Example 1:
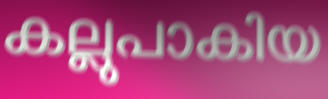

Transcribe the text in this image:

കല്ലുപാകിയ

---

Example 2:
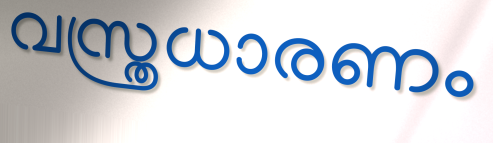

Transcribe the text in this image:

വസ്ത്രധാരണം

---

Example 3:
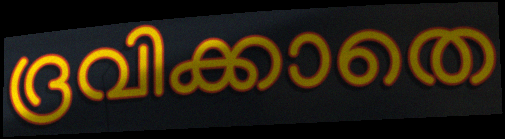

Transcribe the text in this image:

ദ്രവിക്കാതെ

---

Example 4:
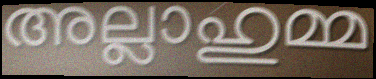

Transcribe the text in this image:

അല്ലാഹുമ്മ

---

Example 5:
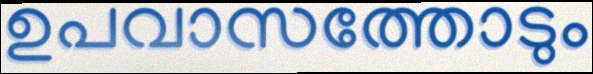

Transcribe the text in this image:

ഉപവാസത്തോടും